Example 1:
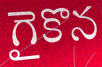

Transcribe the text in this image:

గైకొన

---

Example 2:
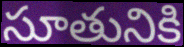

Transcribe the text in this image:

సూతునికి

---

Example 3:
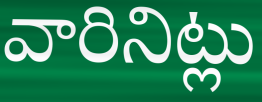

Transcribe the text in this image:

వారినిట్లు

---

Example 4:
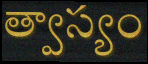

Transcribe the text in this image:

త్వాస్యం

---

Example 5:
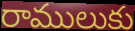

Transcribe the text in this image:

రాములుకు